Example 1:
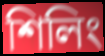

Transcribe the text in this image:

শিলিং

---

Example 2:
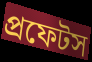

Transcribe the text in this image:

প্রফেটস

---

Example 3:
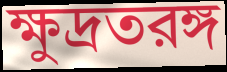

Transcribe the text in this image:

ক্ষুদ্রতরঙ্গ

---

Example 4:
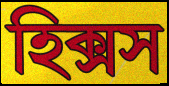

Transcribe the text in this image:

হিক্সস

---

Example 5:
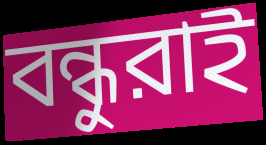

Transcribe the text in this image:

বন্ধুরাই